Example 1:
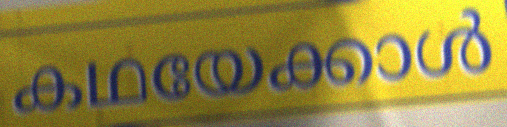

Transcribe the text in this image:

കഥയേക്കാൾ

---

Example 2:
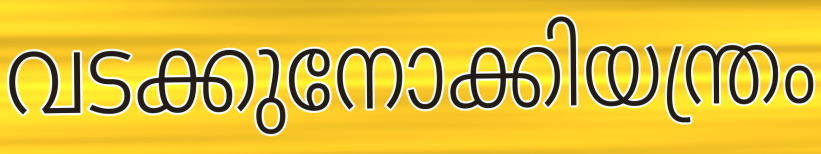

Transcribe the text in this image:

വടക്കുനോക്കിയന്ത്രം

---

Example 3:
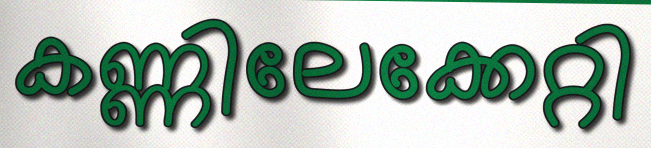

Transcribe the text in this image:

കണ്ണിലേക്കേറ്റി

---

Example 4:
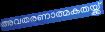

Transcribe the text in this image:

അവതരണാത്മകതയ്ക്ക്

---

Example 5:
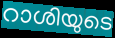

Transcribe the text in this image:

റാശിയുടെ